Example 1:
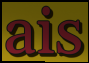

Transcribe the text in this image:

ais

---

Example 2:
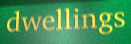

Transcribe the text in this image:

dwellings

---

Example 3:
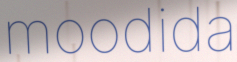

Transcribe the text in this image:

moodida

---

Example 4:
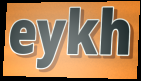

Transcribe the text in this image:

eykh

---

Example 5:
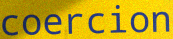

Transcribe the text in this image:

coercion